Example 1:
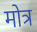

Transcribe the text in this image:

मोत्र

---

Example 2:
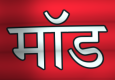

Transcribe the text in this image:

मॉड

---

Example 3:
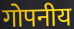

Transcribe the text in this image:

गोपनीय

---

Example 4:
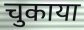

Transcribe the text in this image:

चुकाया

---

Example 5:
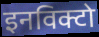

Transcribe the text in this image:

इनविक्टो